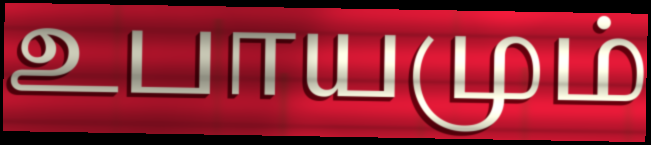
உபாயமும்